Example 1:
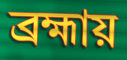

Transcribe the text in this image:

ব্রহ্মায়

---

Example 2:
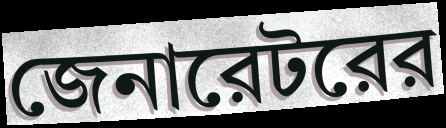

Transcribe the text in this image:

জেনারেটরের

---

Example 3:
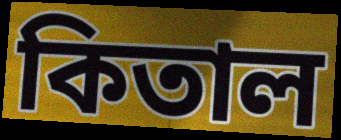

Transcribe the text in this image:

কিতাল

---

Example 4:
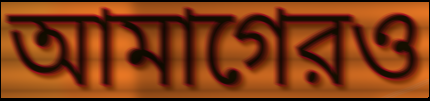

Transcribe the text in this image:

আমাগেরও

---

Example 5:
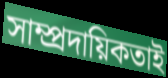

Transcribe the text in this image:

সাম্প্রদায়িকতাই